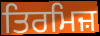
ਤਿਰਮਿਜ਼